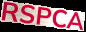
RSPCA